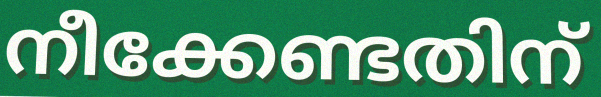
നീക്കേണ്ടതിന്